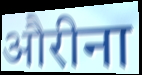
औरीना